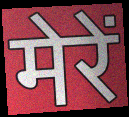
मेरें